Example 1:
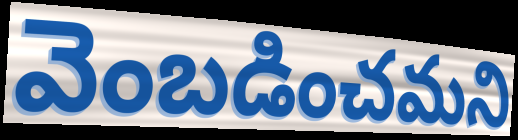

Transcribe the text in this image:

వెంబడించమని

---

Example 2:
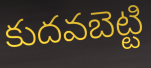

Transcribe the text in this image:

కుదవబెట్టి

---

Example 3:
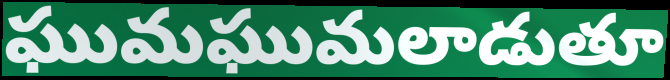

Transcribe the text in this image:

ఘుమఘుమలాడుతూ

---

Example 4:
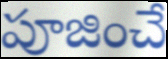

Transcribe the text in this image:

పూజించే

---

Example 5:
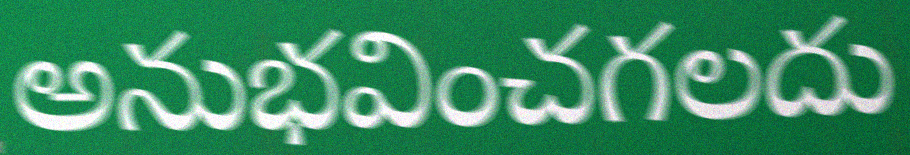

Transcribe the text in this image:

అనుభవించగలదు